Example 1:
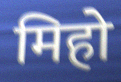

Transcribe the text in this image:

मिहो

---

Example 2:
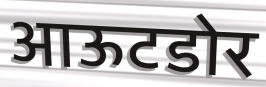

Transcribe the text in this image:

आऊटडोर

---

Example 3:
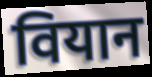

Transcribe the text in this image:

वियान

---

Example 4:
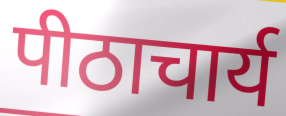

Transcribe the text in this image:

पीठाचार्य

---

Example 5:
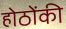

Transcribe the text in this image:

होठोंकी